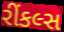
રીંકલ્સ